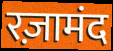
रज़ामंद